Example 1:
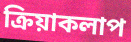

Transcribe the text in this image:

ক্রিয়াকলাপ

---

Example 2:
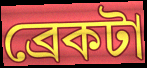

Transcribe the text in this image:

ব্রেকটা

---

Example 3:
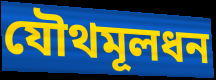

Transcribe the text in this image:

যৌথমূলধন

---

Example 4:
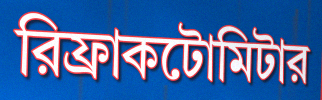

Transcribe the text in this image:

রিফ্রাকটোমিটার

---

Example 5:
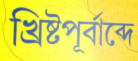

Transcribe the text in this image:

খ্রিষ্টপূর্বাব্দে